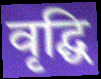
वृद्घि